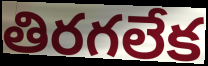
తిరగలేక